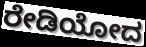
ರೇಡಿಯೋದ